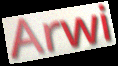
Arwi